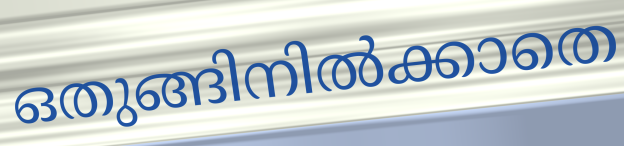
ഒതുങ്ങിനിൽക്കാതെ